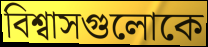
বিশ্বাসগুলোকে